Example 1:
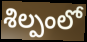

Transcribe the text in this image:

శిల్పంలో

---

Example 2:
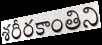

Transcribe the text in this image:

శరీరకాంతిని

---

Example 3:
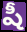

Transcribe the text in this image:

షీ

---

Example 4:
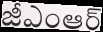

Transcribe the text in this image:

జీఎంఆర్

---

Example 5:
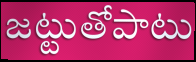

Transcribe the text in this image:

జట్టుతోపాటు